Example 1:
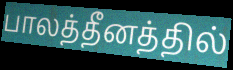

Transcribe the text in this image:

பாலத்தீனத்தில்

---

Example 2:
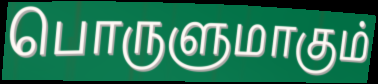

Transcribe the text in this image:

பொருளுமாகும்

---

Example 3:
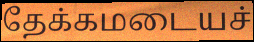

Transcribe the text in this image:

தேக்கமடையச்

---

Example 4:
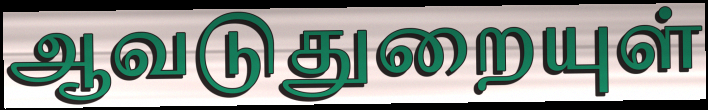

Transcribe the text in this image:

ஆவடுதுறையுள்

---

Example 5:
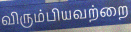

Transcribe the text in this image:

விரும்பியவற்றை